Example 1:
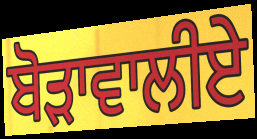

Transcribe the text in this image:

ਬੋੜਾਵਾਲੀਏ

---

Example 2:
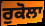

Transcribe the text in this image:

ਰੁਕੋਲਾ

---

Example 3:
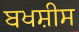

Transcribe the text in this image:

ਬਖਸ਼ੀਸ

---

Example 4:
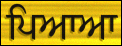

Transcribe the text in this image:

ਪਿਆਆ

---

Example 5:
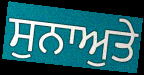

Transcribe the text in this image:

ਸੁਨਾਅੁਤੇ